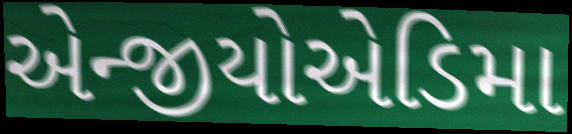
એન્જીયોએડિમા